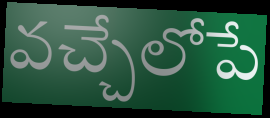
వచ్చేలోపే